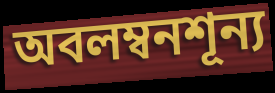
অবলম্বনশূন্য